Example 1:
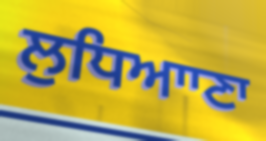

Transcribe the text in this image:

ਲੁਧਿਆਾਣਾ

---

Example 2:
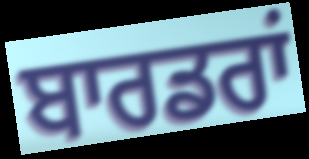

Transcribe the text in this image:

ਬਾਰਡਰਾਂ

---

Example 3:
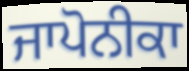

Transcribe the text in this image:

ਜਾਪੋਨੀਕਾ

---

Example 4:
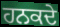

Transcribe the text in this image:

ਹਨਕਦੇ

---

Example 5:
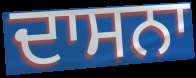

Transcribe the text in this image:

ਦਾਸਨਾ